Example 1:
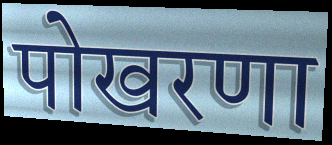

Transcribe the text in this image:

पोखरणा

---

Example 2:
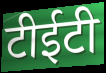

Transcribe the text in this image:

टीईटी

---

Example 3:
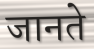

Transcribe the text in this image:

जानते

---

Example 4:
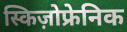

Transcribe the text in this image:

स्किज़ोफ्रेनिक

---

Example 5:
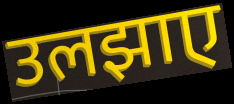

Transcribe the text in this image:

उलझाए